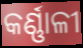
କର୍ଣ୍ଣାଳୀ